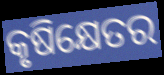
କୃଷିକ୍ଷେତର